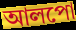
আলপো